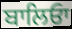
ਬਾਲਿਓਾ